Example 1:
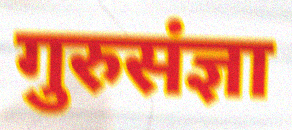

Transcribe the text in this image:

गुरुसंज्ञा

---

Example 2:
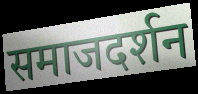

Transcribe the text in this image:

समाजदर्शन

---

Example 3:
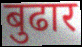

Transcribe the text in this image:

बुढार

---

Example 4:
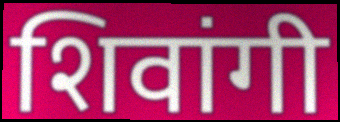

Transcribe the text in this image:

शिवांगी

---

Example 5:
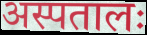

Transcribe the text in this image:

अस्पतालः